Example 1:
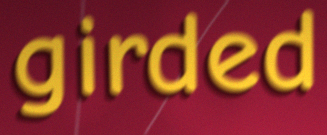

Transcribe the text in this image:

girded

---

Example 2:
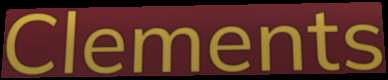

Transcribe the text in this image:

Clements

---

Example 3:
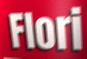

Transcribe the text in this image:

Flori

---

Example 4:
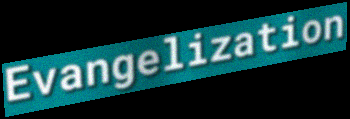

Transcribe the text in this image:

Evangelization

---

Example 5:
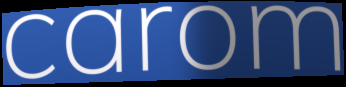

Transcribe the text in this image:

carom